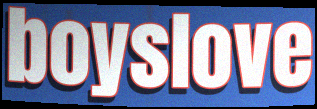
boyslove